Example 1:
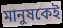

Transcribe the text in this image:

মানুষকেই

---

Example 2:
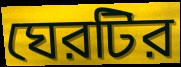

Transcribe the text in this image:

ঘেরটির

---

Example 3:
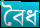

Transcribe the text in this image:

বৈধ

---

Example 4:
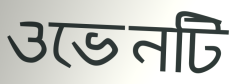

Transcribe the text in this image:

ওভেনটি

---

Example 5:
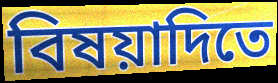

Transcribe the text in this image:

বিষয়াদিতে